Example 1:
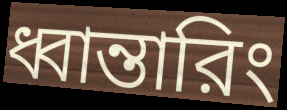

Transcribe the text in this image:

ধ্বান্তারিং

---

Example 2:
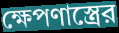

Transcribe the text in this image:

ক্ষেপণাস্ত্রের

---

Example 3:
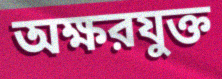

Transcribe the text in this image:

অক্ষরযুক্ত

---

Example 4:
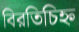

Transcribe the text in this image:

বিরতিচিহ্ন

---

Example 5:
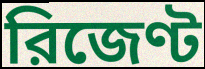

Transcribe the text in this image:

রিজেণ্ট